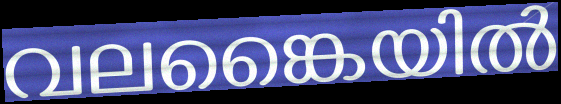
വലങ്കൈയിൽ